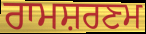
ਰਾਮਸ਼ਰਣਮ